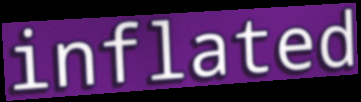
inflated